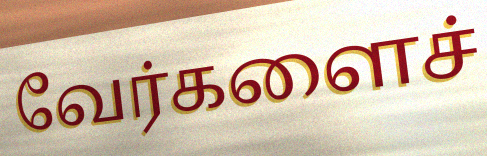
வேர்களைச்